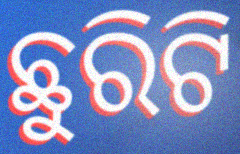
ଛୁରିଟି